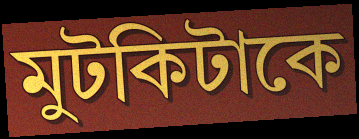
মুটকিটাকে